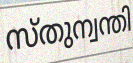
സ്തുന്വന്തി